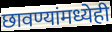
छावण्यांमध्येही